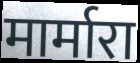
मार्मारा